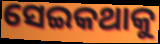
ସେଇକଥାକୁ